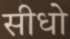
सीधो